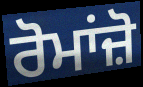
ਰੋਮਾਂਜ਼ੋ